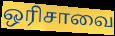
ஒரிசாவை